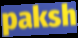
paksh